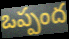
ఒప్పంద